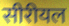
सीरीयल